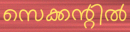
സെക്കന്റിൽ